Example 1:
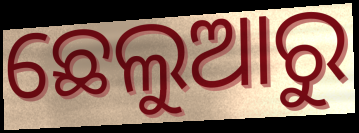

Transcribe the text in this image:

ଛେଲୁଆରୁ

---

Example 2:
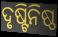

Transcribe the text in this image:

ଦୃଷ୍ଟିନିଷ୍ଠ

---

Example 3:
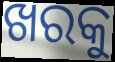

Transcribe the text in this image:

ଖରକୁ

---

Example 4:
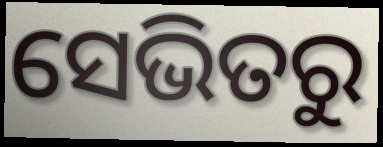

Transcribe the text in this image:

ସେଭିତରୁ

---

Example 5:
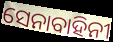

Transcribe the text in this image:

ସେନାବାହିନୀ